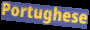
Portughese